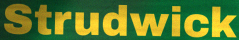
Strudwick